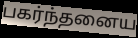
பகர்ந்தனைய